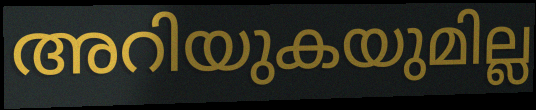
അറിയുകയുമില്ല